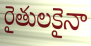
రైతులకైనా